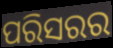
ପରିସରର